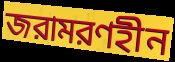
জরামরণহীন